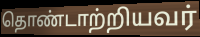
தொண்டாற்றியவர்